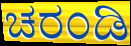
ಚರಂಡಿ